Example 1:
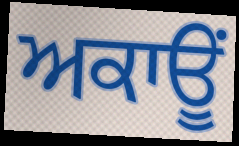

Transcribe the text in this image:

ਅਕਾਊਂ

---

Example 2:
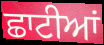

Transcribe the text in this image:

ਛਾਟੀਆਂ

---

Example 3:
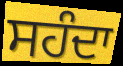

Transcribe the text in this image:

ਸਹੰਦਾ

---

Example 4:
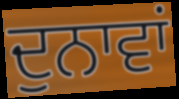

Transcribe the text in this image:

ਦੁਨਾਵਾਂ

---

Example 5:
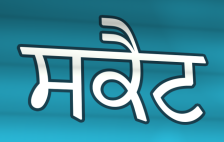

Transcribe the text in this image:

ਸਕੈਟ